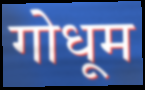
गोधूम